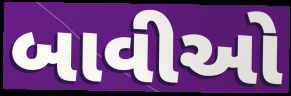
બાવીઓ